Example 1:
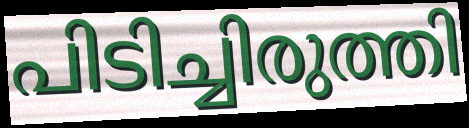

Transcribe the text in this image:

പിടിച്ചിരുത്തി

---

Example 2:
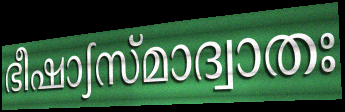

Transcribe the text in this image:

ഭീഷാഽസ്മാദ്വാതഃ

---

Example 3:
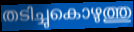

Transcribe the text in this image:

തടിച്ചുകൊഴുത്തു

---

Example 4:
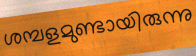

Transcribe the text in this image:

ശമ്പളമുണ്ടായിരുന്നു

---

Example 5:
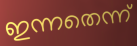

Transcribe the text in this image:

ഇന്നതെന്ന്